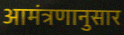
आमंत्रणानुसार